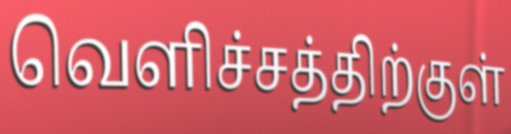
வெளிச்சத்திற்குள்